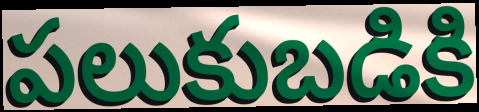
పలుకుబడికి